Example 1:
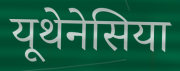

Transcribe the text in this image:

यूथेनेसिया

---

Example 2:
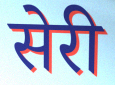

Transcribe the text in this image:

सेरी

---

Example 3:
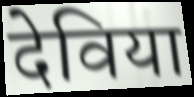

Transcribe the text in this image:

देविया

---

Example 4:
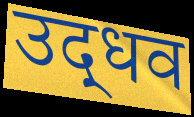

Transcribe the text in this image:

उद्धव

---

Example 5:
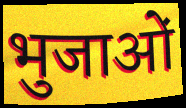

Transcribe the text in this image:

भुजाओं